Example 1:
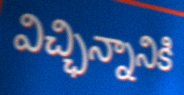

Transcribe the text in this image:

విచ్ఛిన్నానికి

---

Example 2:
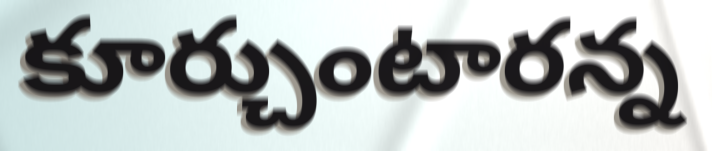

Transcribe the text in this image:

కూర్చుంటారన్న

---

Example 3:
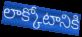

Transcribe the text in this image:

లాక్కోటానికి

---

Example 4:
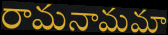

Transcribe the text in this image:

రామనామమా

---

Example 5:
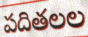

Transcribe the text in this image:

పదితలల